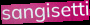
sangisetti